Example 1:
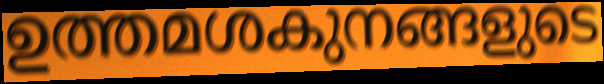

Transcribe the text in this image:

ഉത്തമശകുനങ്ങളുടെ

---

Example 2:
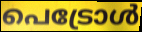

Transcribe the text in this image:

പെട്രോൾ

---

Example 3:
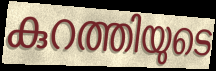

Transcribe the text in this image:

കുറത്തിയുടെ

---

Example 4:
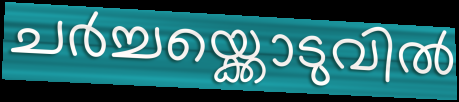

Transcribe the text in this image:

ചർച്ചയ്ക്കൊടുവിൽ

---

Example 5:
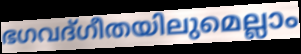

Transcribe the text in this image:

ഭഗവദ്ഗീതയിലുമെല്ലാം